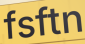
fsftn